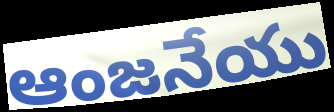
ఆంజనేయు